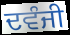
ਦਵੰਜੀ